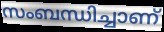
സംബന്ധിച്ചാണ്